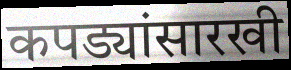
कपड्यांसारखी